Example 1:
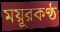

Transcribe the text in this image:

ময়ূরকণ্ঠ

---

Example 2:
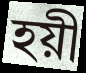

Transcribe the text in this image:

হয়ী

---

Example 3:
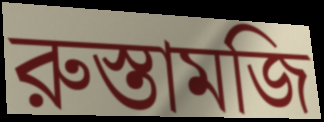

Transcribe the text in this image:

রুস্তামজি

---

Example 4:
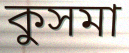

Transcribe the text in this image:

কুসমা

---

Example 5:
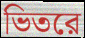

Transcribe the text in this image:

ভিতরে